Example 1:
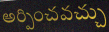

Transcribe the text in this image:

అర్పించవచ్చు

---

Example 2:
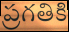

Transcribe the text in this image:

ప్రగతికి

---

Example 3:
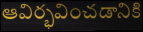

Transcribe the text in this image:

ఆవిర్భవించడానికి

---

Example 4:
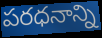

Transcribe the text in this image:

పరధనాన్ని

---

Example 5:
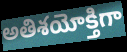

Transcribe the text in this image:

అతిశయోక్తిగా